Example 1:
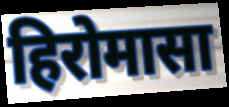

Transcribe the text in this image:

हिरोमासा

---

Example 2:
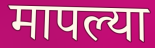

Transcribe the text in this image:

मापल्या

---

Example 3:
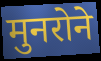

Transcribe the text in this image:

मुनरोने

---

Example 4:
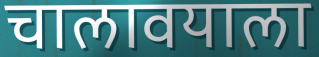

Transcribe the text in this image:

चालावयाला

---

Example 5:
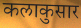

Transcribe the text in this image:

कलाकुसार